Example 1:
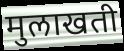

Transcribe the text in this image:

मुलाखती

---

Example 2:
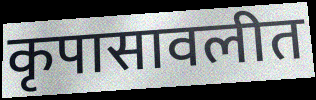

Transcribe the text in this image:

कृपासावलीत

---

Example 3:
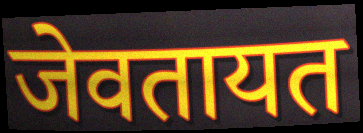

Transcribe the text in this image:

जेवतायत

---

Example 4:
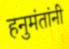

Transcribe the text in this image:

हनुमंतांनी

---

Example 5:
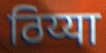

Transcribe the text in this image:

ठिय्या